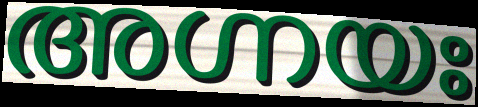
അഗ്നയഃ